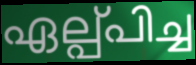
ഏല്പ്പിച്ച